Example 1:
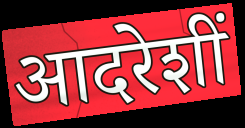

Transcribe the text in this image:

आदरेशीं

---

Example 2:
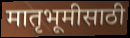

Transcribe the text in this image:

मातृभूमीसाठी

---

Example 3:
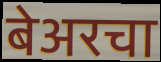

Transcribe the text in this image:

बेअरचा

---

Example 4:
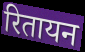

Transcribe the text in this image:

रितायन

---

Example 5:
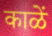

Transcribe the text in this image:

काळें